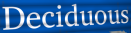
Deciduous